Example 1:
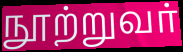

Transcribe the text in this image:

நூற்றுவர்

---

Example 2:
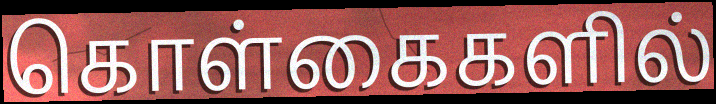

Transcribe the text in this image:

கொள்கைகளில்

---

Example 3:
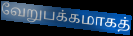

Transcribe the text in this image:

வேறுபக்கமாகத்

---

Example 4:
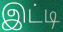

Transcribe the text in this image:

இட்டி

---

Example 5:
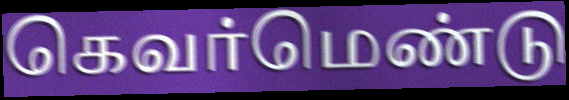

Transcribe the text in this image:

கெவர்மெண்டு